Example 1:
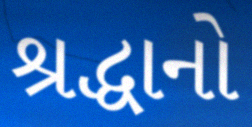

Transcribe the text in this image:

શ્રદ્ધાનો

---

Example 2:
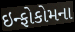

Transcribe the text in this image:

ઇન્ફોકોમના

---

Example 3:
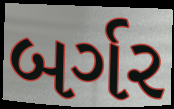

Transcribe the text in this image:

બર્ગર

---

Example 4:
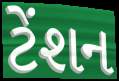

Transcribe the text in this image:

ટેંશન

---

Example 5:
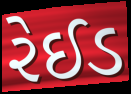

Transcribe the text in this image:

રેઈડ